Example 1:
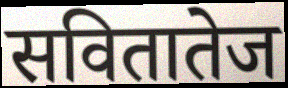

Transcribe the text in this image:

सवितातेज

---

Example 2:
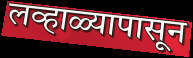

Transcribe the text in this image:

लव्हाळ्यापासून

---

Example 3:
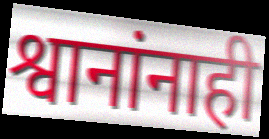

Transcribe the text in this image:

श्वानांनाही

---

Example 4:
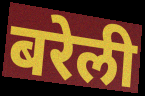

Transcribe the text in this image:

बरेली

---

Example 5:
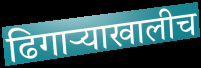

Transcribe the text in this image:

ढिगाऱ्याखालीच